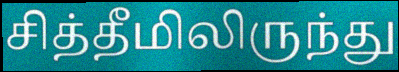
சித்தீமிலிருந்து